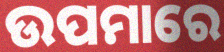
ଉପମାରେ